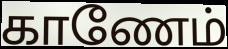
காணேம்